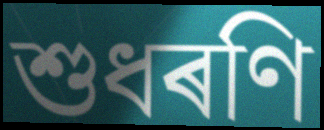
শুধৰণি